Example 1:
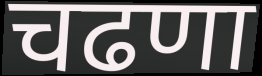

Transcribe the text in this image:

चढणा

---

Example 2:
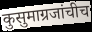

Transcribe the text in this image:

कुसुमाग्रजांचीच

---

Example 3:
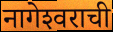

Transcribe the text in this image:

नागेश्‍वराची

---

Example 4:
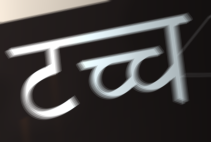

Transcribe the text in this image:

टच्च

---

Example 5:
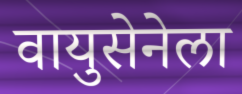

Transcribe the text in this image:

वायुसेनेला